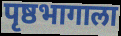
पृष्ठभागाला